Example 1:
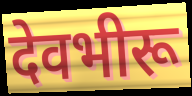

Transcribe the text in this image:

देवभीरू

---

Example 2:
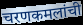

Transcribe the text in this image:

चरणकमलांची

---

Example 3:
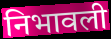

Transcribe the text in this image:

निभावली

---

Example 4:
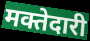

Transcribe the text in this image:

मक्तेदारी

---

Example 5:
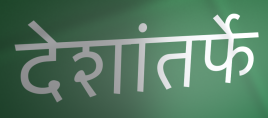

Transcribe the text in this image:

देशांतर्फे